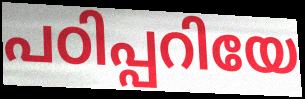
പഠിപ്പറിയേ